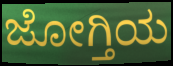
ಜೋಗ್ತಿಯ